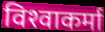
विश्वाकर्मा